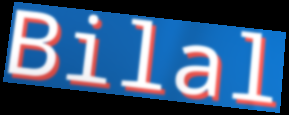
Bilal